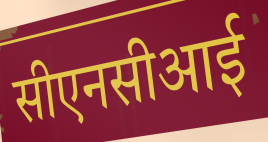
सीएनसीआई